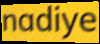
nadiye